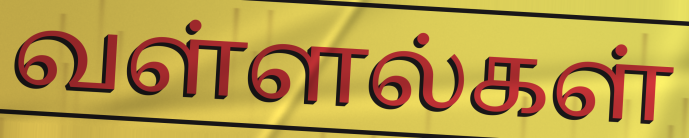
வள்ளல்கள்